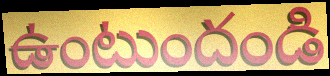
ఉంటుందండి